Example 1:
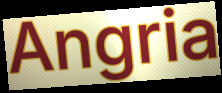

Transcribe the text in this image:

Angria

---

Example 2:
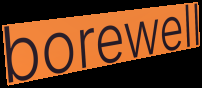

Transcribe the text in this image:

borewell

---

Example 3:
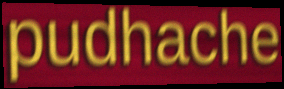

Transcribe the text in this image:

pudhache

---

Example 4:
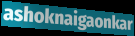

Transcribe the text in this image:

ashoknaigaonkar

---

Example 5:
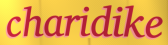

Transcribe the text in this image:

charidike